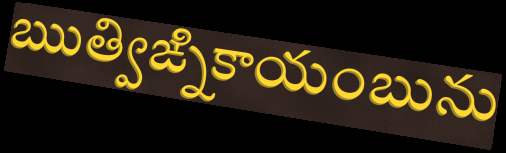
ఋత్విఙ్నికాయంబును